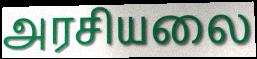
அரசியலை